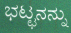
ಭಟ್ಟನನ್ನು